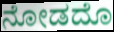
ನೋಡದೊ